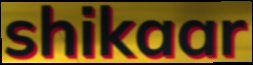
shikaar